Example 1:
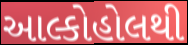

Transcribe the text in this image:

આલ્કોહોલથી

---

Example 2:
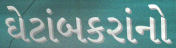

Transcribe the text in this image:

ઘેટાંબકરાંનો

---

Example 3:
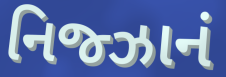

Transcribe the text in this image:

નિજ્ઝાનં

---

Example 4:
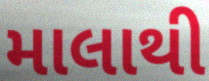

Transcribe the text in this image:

માલાથી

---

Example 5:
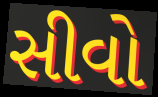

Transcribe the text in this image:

સીવો